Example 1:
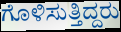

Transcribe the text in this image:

ಗೊಳಿಸುತ್ತಿದ್ದರು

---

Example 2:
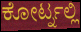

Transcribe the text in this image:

ಕೋರ್ಟ್ನಲ್ಲಿ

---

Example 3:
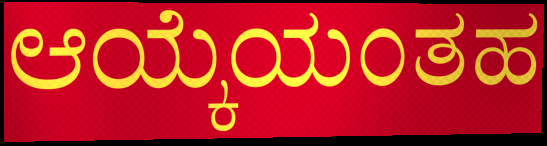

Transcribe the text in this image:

ಆಯ್ಕೆಯಂತಹ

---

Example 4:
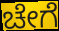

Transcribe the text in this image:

ಚೇಗೆ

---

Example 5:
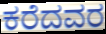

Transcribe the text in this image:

ಕರೆದವರ